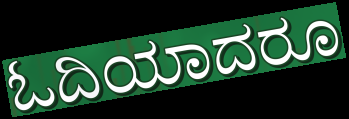
ಓದಿಯಾದರೂ